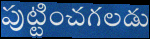
పుట్టించగలడు